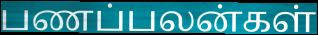
பணப்பலன்கள்